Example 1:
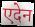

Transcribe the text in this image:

एदेन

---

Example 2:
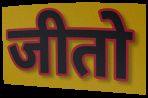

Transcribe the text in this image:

जीतो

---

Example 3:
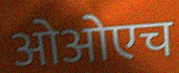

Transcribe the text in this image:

ओओएच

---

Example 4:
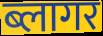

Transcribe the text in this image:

ब्लागर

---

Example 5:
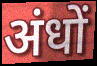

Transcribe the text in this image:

अंधों